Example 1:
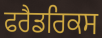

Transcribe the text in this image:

ਫਰੈਡਰਿਕਸ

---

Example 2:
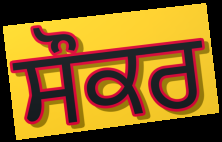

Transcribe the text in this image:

ਸੌਕਰ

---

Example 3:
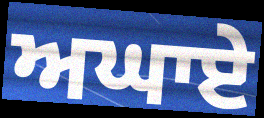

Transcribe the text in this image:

ਅਘਾਏ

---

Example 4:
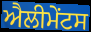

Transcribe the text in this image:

ਐਲੀਮੇੰਟਸ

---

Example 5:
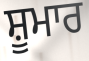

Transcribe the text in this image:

ਸ਼ੂਮਾਰ